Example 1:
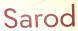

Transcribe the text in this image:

Sarod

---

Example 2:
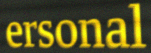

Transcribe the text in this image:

ersonal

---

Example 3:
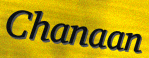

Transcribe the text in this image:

Chanaan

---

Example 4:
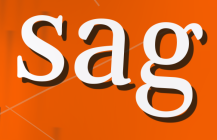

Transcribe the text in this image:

sag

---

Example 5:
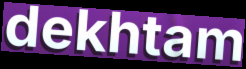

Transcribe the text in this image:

dekhtam